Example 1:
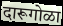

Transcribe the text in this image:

दारूगोळा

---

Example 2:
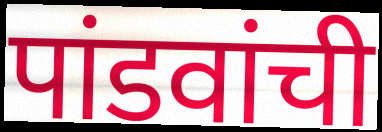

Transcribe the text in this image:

पांडवांची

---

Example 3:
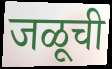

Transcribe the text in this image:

जळूची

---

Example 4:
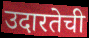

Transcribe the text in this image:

उदारतेची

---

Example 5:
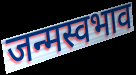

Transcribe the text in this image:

जन्मस्वभाव